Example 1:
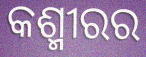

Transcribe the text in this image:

କଶ୍ମୀରର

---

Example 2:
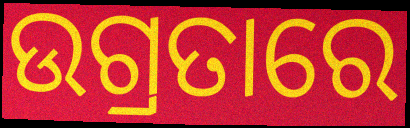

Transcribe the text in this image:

ଉଗ୍ରତାରେ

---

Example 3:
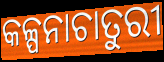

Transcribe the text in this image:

କଳ୍ପନାଚାତୁରୀ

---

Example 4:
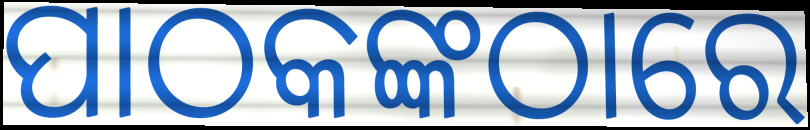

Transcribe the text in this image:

ପାଠକଙ୍କଠାରେ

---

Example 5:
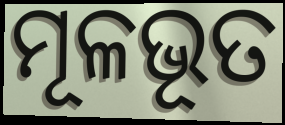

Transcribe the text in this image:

ମୂଳଭୂତ